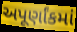
અપૂર્ણાંકમાં